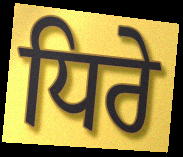
ਧਿਰੇ